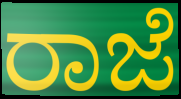
ರಾಜೆ